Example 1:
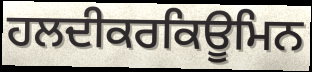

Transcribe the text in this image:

ਹਲਦੀਕਰਕਿਊਮਿਨ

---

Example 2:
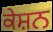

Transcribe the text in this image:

ਕੇਸ਼ਨ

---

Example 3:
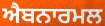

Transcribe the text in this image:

ਐਬਨਾਰਮਲ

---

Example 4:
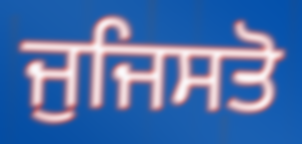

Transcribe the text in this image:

ਜੁਜਿਸਤੋ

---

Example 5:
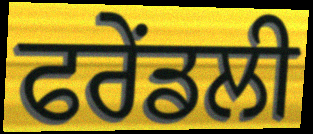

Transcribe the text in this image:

ਫਰੇਂਡਲੀ